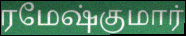
ரமேஷ்குமார்